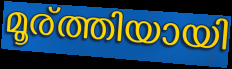
മൂര്ത്തിയായി